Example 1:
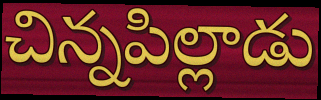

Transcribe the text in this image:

చిన్నపిల్లాడు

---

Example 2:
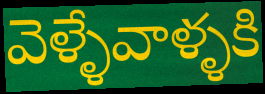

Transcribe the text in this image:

వెళ్ళేవాళ్ళకి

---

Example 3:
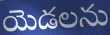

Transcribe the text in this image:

యెడలను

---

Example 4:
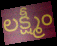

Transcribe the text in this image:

లక్ష్మీం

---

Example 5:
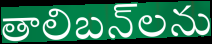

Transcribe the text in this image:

తాలిబన్‌లను